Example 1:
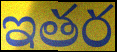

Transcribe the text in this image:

ఇతర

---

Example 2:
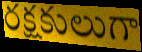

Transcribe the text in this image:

రక్షకులుగా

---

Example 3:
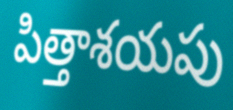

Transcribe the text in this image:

పిత్తాశయపు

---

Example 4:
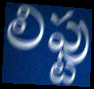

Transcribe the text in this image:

లిఫ్టు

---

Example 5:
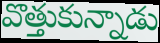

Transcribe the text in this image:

వొత్తుకున్నాడు